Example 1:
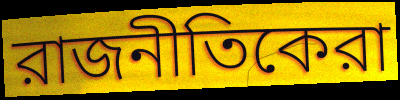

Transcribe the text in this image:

রাজনীতিকেরা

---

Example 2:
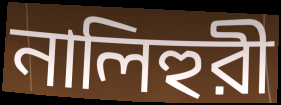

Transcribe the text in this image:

নালিহুরী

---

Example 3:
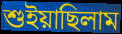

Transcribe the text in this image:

শুইয়াছিলাম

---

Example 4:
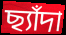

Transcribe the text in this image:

ছ্যাঁদা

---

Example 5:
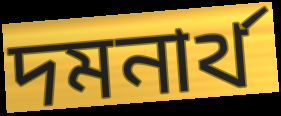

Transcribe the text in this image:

দমনার্থ